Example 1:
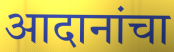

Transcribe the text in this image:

आदानांचा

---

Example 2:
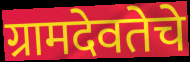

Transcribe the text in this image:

ग्रामदेवतेचे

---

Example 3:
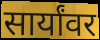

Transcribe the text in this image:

सार्यांवर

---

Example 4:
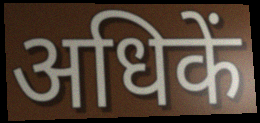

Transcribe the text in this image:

अधिकें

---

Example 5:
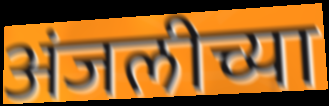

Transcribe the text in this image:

अंजलीच्या